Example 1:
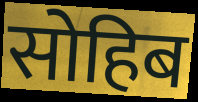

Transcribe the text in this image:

सोहिब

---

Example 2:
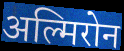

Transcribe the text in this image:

अल्मिरोन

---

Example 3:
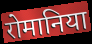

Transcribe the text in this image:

रोमानिया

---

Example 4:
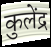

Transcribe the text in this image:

कुलेंद्र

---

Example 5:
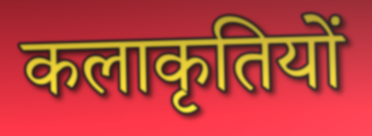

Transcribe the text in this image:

कलाकृतियों